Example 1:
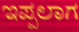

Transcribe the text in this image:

ಇಪ್ಪಲಾಗ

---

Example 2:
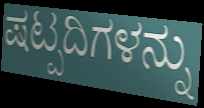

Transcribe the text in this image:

ಷಟ್ಪದಿಗಳನ್ನು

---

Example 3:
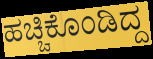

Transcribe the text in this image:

ಹಚ್ಚಿಕೊಂಡಿದ್ದ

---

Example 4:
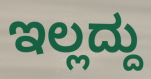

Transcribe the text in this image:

ಇಲ್ಲದ್ದು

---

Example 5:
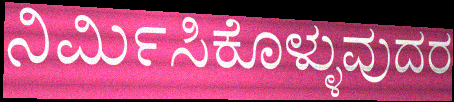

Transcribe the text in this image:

ನಿರ್ಮಿಸಿಕೊಳ್ಳುವುದರ